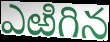
ఎఱిగిన